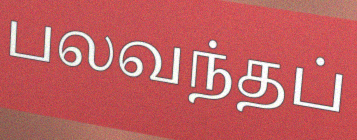
பலவந்தப்